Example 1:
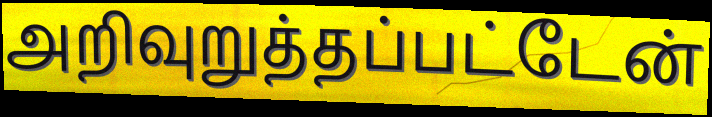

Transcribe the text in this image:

அறிவுறுத்தப்பட்டேன்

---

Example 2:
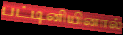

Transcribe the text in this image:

பட்டினியினால்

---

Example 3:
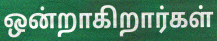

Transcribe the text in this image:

ஒன்றாகிறார்கள்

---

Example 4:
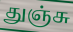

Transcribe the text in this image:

துஞ்சு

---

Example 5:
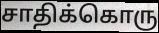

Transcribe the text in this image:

சாதிக்கொரு